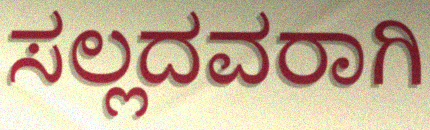
ಸಲ್ಲದವರಾಗಿ